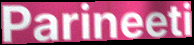
Parineeti